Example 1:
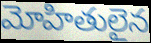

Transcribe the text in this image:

మోహితులైన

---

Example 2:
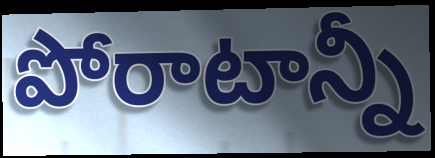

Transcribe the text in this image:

పోరాటాన్నీ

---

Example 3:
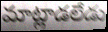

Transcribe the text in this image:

మాట్లాడలేడు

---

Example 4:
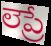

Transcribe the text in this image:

లెప్రే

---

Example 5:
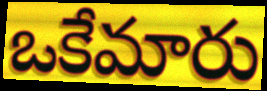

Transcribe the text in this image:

ఒకేమారు